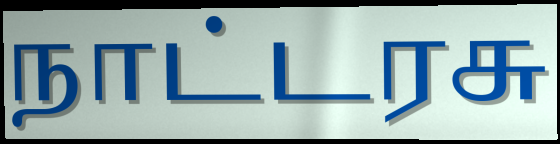
நாட்டரசு